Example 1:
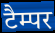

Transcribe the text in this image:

टैम्पर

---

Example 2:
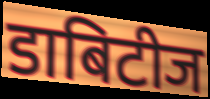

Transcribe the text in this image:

डाबिटीज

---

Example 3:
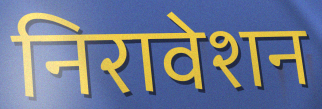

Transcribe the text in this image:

निरावेशन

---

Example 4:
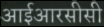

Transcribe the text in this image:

आईआरसीसी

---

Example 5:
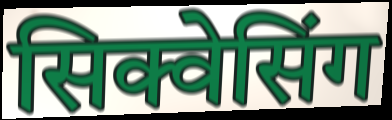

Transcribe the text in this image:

सिक्वेसिंग